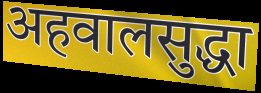
अहवालसुद्धा